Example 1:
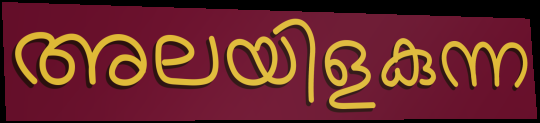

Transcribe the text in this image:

അലയിളകുന്ന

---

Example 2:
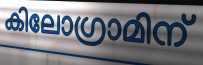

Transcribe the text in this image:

കിലോഗ്രാമിന്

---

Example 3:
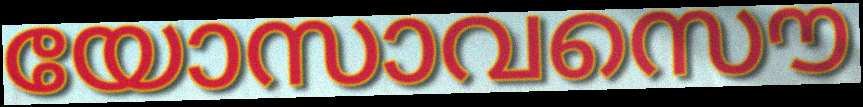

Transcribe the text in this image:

യോസാവസൌ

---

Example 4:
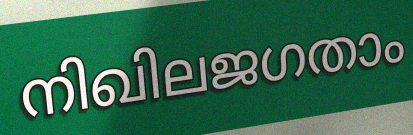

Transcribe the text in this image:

നിഖിലജഗതാം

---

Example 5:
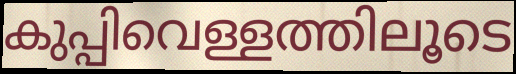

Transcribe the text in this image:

കുപ്പിവെള്ളത്തിലൂടെ